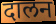
दालन